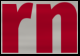
rn